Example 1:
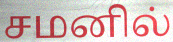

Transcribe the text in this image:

சமனில்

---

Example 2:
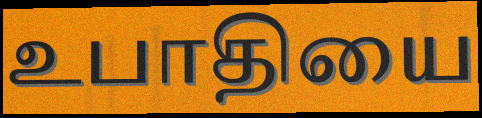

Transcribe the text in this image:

உபாதியை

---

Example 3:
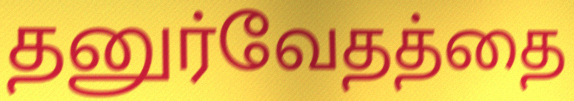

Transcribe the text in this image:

தனுர்வேதத்தை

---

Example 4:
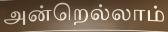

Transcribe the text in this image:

அன்றெல்லாம்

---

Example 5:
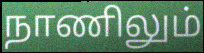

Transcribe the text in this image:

நாணிலும்